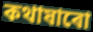
কথাষাৰো